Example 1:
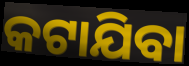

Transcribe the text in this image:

କଟାଯିବା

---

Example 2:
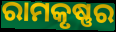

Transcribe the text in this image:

ରାମକୃଷ୍ଣର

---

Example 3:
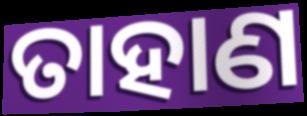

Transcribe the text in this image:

ତାହାଣ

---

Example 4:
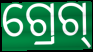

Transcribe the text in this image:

ଗ୍ରେଗ୍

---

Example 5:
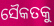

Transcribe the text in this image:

ସୈକତକୁ